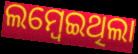
ଲମ୍ବେଇଥିଲା